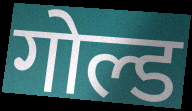
गोल्ड